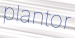
plantor